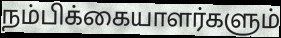
நம்பிக்கையாளர்களும்